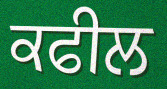
ਕਫੀਲ